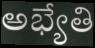
అభ్యేతి